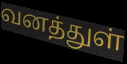
வனத்துள்